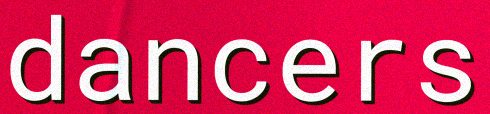
dancers